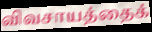
விவசாயத்தைக்